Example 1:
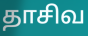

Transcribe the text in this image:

தாசிவ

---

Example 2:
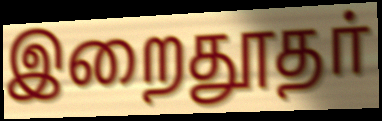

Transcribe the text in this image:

இறைதூதர்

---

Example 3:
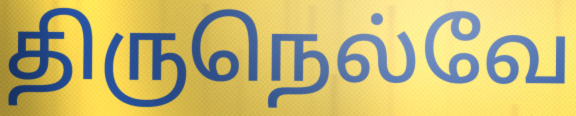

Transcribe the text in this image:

திருநெல்வே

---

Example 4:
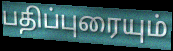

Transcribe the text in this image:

பதிப்புரையும்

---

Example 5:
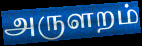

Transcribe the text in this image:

அருளறம்